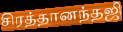
சிரத்தானந்தஜி